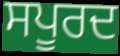
ਸਪੂਰਦ